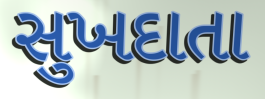
સુખદાતા